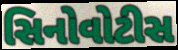
સિનોવોટીસ